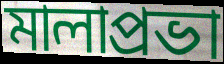
মালাপ্রভা